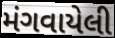
મંગવાયેલી